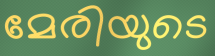
മേരിയുടെ